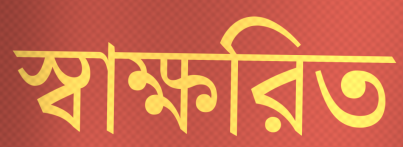
স্বাক্ষরিত